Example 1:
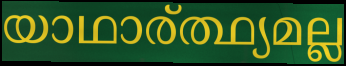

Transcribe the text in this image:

യാഥാര്ത്ഥ്യമല്ല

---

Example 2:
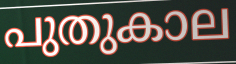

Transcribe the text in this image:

പുതുകാല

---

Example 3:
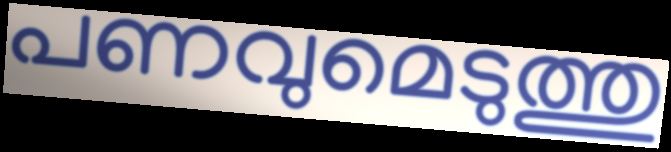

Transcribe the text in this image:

പണവുമെടുത്തു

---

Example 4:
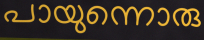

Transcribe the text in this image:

പായുന്നൊരു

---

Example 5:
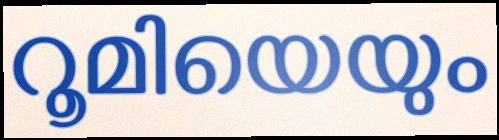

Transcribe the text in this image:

റൂമിയെയും